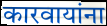
कारवायांना